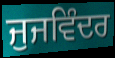
ਜੁਜਵਿੰਦਰ